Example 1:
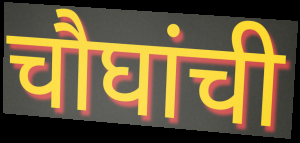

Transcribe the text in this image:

चौघांची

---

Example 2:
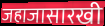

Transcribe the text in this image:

जहाजासारखी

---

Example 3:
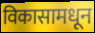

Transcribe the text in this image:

विकासामधून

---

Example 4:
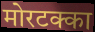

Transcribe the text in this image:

मोरटक्का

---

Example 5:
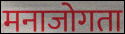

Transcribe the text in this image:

मनाजोगता